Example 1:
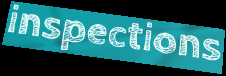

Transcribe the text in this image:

inspections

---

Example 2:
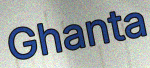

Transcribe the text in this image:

Ghanta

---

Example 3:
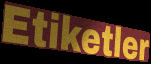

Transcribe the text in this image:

Etiketler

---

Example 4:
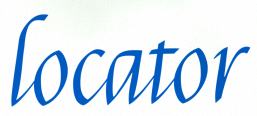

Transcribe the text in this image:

locator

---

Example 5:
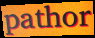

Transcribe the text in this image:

pathor